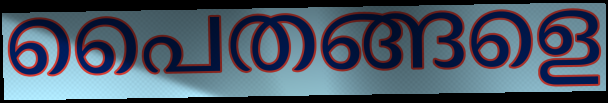
പൈതങ്ങളെ